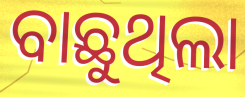
ବାଛୁଥିଲା